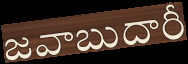
జవాబుదారీ